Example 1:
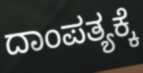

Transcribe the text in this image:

ದಾಂಪತ್ಯಕ್ಕೆ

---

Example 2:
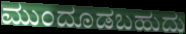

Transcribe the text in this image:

ಮುಂದೂಡಬಹುದು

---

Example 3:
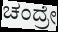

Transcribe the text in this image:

ಚಂದ್ರೇ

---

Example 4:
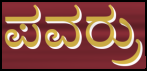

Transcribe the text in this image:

ಪವರ್ರು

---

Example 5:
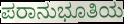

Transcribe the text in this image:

ಪರಾನುಭೂತಿಯ